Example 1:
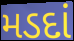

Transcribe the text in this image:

મડદાં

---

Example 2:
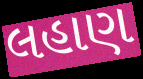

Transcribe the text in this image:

લહાણ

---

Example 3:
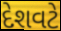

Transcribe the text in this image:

દેશવટે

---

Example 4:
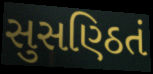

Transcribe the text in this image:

સુસણ્ઠિતં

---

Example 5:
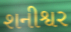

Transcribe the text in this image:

શનીશ્વર